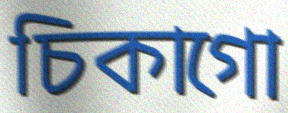
চিকাগো